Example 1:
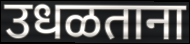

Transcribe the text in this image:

उधळताना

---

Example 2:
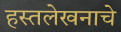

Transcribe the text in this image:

हस्तलेखनाचे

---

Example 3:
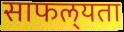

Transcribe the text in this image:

साफल्यता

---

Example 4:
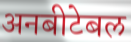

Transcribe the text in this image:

अनबीटेबल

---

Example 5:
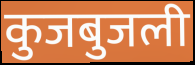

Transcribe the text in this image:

कुजबुजली